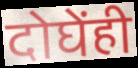
दोघेंही